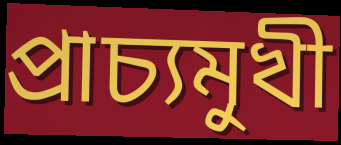
প্রাচ্যমুখী